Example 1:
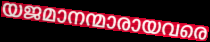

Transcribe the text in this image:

യജമാനന്മാരായവരെ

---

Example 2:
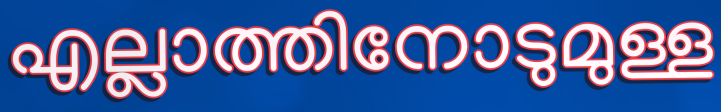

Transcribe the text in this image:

എല്ലാത്തിനോടുമുള്ള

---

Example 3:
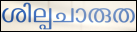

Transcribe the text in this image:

ശില്പചാരുത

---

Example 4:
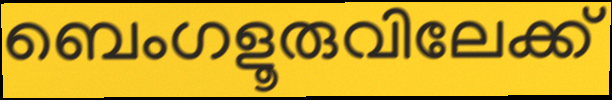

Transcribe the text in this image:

ബെംഗളൂരുവിലേക്ക്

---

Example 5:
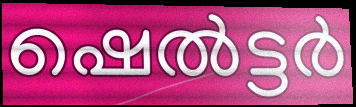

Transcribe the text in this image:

ഷെൽട്ടർ